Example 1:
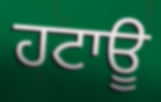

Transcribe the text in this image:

ਹਟਾਊ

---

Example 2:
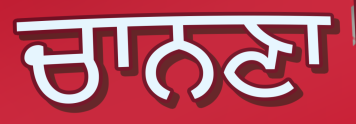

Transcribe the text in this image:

ਚਾਨਣਾ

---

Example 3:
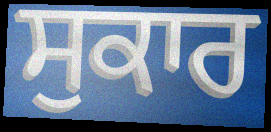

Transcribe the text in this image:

ਸੁਕਾਰ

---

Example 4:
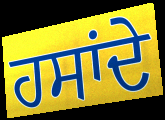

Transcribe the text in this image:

ਹਸਾਂਦੇ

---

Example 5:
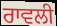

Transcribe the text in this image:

ਰਾਵਲੀ